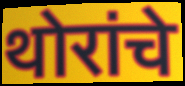
थोरांचे